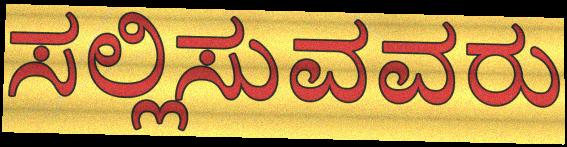
ಸಲ್ಲಿಸುವವರು